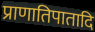
प्राणातिपातादि